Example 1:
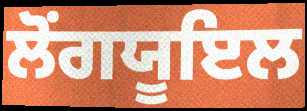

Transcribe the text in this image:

ਲੋਂਗਯੂਇਲ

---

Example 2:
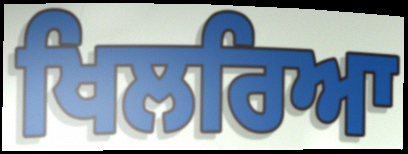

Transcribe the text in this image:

ਖਿਲਰਿਆ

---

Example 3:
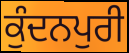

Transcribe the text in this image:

ਕੁੰਦਨਪੁਰੀ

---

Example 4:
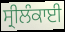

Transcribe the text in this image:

ਸ੍ਰੀਲੰਕਾਈ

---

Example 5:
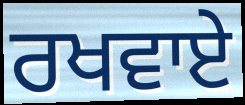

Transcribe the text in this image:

ਰਖਵਾਏ